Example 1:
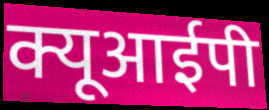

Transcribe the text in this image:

क्यूआईपी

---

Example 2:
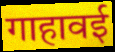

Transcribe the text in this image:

गाहावई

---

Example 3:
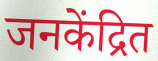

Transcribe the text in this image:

जनकेंद्रित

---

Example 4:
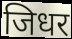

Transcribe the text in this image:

जिधर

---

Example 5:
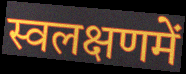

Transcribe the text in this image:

स्वलक्षणमें